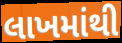
લાખમાંથી